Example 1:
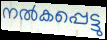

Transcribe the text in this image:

നൽകപ്പെട്ടു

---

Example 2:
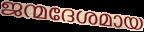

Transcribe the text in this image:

ജന്മദേശമായ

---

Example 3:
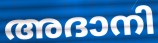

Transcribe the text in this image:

അദാനി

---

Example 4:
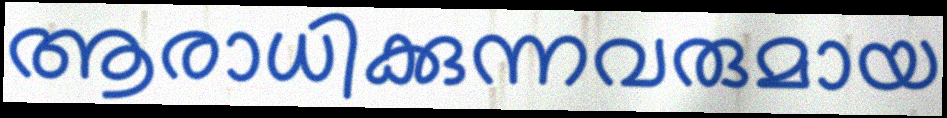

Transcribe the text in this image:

ആരാധിക്കുന്നവരുമായ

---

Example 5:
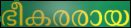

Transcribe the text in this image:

ഭീകരരായ